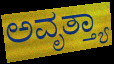
ಅವೃತ್ತ್ಯಾ